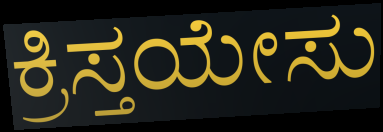
ಕ್ರಿಸ್ತಯೇಸು